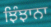
ਝਿੰਝਾਨਾ